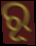
ରୂ